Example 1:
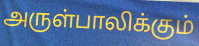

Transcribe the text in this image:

அருள்பாலிக்கும்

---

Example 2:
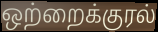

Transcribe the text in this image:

ஒற்றைக்குரல்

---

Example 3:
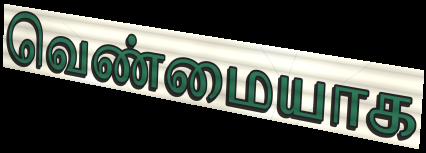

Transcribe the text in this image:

வெண்மையாக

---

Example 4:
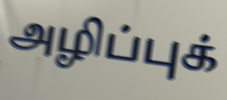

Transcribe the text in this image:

அழிப்புக்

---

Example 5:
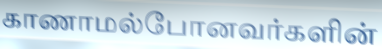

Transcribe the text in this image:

காணாமல்போனவர்களின்